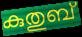
കുതുബ്